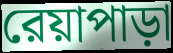
রেয়াপাড়া